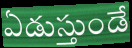
ఏడుస్తుండే